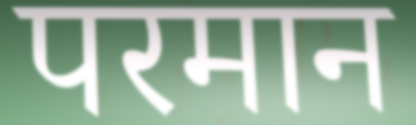
परमान